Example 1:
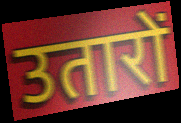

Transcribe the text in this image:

उतारों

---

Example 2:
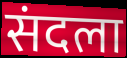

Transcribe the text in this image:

संदला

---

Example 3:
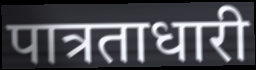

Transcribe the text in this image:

पात्रताधारी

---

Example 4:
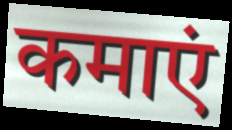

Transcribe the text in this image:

कमाएं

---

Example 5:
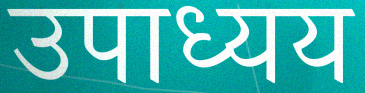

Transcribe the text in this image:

उपाध्यय